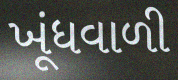
ખૂંધવાળી